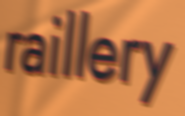
raillery